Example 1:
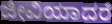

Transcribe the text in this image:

ಜೀವಿಯಾದರೆ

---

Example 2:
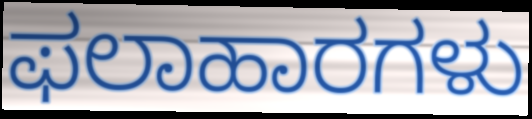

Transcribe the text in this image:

ಫಲಾಹಾರಗಳು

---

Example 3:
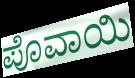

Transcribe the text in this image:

ಪೊವಾಯಿ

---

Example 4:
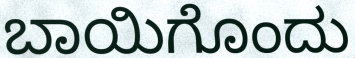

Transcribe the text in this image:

ಬಾಯಿಗೊಂದು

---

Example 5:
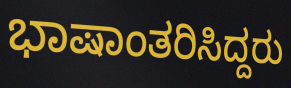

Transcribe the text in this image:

ಭಾಷಾಂತರಿಸಿದ್ದರು